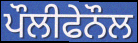
ਪੌਲੀਫੇਨੌਲ